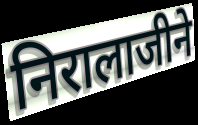
निरालाजीने